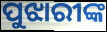
ପୁଝାରୀଙ୍କ